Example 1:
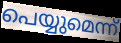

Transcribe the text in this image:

പെയ്യുമെന്ന്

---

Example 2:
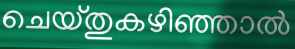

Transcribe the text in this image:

ചെയ്തുകഴിഞ്ഞാൽ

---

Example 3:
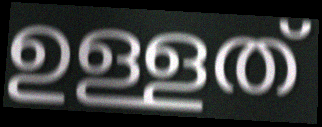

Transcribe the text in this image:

ഉള്ളത്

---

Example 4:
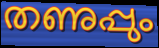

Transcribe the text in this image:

തണുപ്പും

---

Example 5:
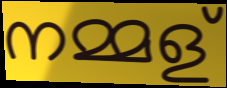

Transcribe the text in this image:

നമ്മള്